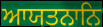
ਆਯਤਨਾਨਿ